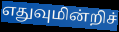
எதுவுமின்றிச்